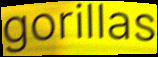
gorillas